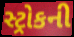
સ્ટ્રોકની